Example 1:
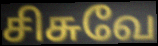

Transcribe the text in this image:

சிசுவே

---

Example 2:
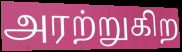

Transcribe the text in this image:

அரற்றுகிற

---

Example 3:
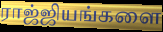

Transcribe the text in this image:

ராஜ்ஜியங்களை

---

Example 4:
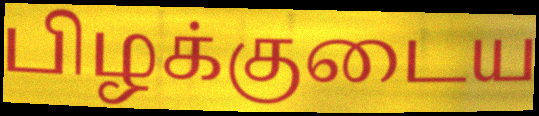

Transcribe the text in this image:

பிழக்குடைய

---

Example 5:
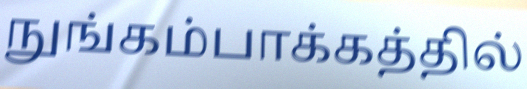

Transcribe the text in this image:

நுங்கம்பாக்கத்தில்